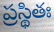
ప్రస్థితః